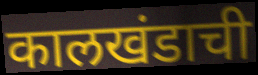
कालखंडाची